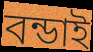
বন্ডাই